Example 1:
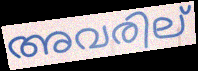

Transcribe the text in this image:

അവരില്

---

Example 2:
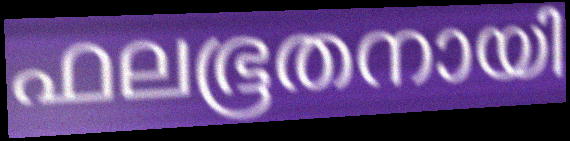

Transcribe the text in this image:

ഫലഭൂതനായി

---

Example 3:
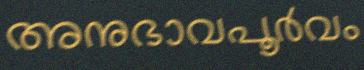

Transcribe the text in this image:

അനുഭാവപൂർവം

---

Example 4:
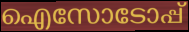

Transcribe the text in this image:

ഐസോടോപ്പ്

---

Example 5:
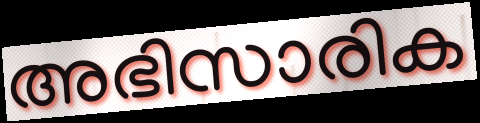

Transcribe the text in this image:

അഭിസാരിക